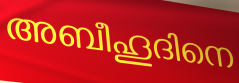
അബീഹൂദിനെ